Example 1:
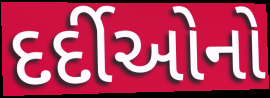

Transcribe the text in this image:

દર્દીઓનો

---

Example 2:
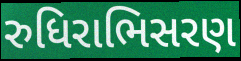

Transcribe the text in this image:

રુધિરાભિસરણ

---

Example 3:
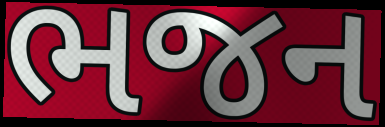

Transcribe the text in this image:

ભજન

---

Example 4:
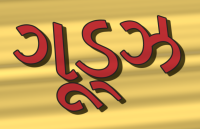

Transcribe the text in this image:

ગૂડ્ઝ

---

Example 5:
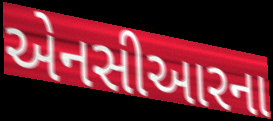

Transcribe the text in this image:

એનસીઆરના